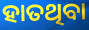
ହାତଥିବା